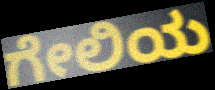
ಗೇಲಿಯ